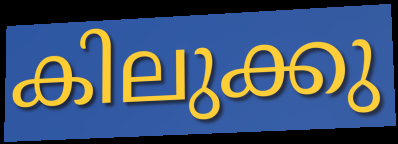
കിലുക്കു